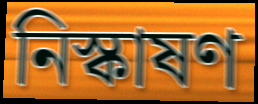
নিস্কাষণ